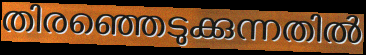
തിരഞ്ഞെടുക്കുന്നതിൽ